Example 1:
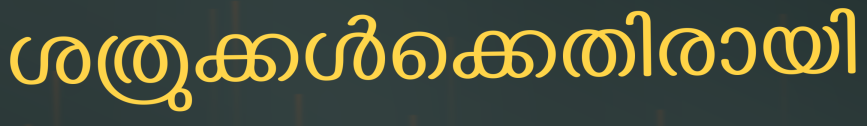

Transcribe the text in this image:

ശത്രുക്കൾക്കെതിരായി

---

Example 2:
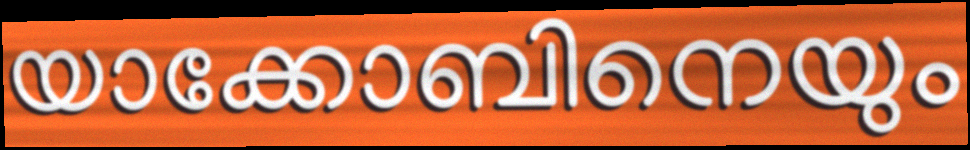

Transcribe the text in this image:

യാക്കോബിനെയും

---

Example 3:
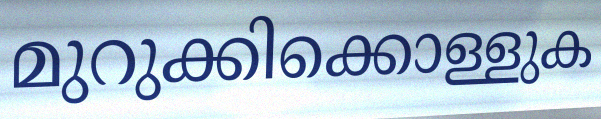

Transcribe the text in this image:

മുറുക്കിക്കൊള്ളുക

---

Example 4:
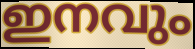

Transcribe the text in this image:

ഇനവും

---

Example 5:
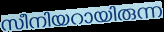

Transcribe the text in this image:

സീനിയറായിരുന്ന